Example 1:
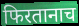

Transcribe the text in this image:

फिरतानाच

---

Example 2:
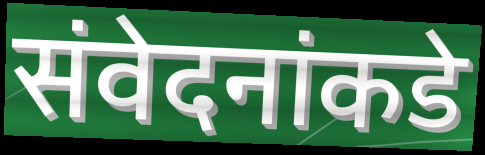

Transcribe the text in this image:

संवेदनांकडे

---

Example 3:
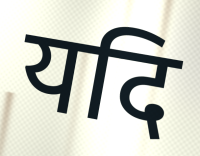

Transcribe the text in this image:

यदि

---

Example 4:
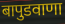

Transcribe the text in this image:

बापुडवाणा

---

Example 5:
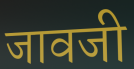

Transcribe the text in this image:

जावजी